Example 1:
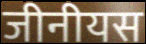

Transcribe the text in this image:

जीनीयस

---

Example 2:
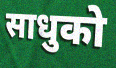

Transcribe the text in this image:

साधुको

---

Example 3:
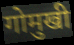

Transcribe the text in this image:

गोमुखी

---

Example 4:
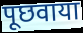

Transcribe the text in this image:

पूछवाया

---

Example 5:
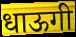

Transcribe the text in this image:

धाऊगी